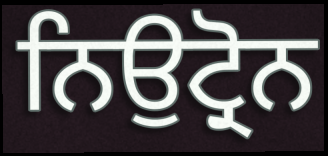
ਨਿਉਟ੍ਰੋਨ